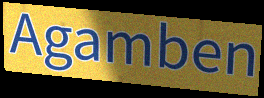
Agamben